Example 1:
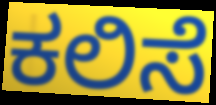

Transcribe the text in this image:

ಕಲಿಸೆ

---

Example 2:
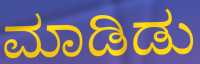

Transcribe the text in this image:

ಮಾಡಿಡು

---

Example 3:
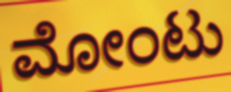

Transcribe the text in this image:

ಮೋಂಟು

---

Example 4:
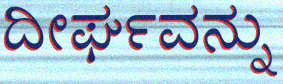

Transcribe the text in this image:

ದೀರ್ಘವನ್ನು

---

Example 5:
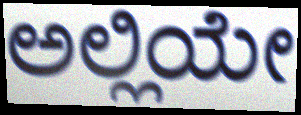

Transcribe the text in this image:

ಅಲ್ಲಿಯೇ